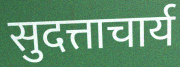
सुदत्ताचार्य